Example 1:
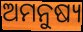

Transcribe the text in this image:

ଅମନୁଷ୍ୟ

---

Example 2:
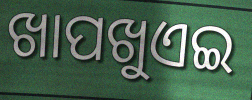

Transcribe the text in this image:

ଖାପଖୁଏଇ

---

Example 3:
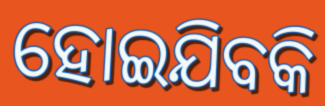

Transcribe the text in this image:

ହୋଇଯିବକି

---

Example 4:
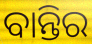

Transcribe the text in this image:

ବାନ୍ତିର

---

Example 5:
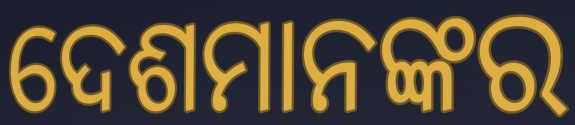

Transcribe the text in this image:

ଦେଶମାନଙ୍କର